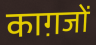
काग़जों